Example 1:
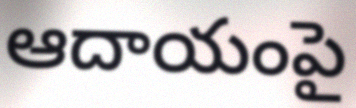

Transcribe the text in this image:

ఆదాయంపై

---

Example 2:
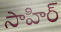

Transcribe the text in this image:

సాహిర్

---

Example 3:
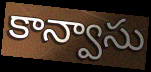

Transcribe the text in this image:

కాన్వాసు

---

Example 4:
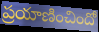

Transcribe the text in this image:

ప్రయాణించిందో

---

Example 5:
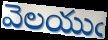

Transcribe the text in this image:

వెలయుఁ